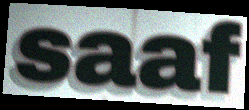
saaf